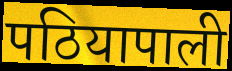
पठियापाली